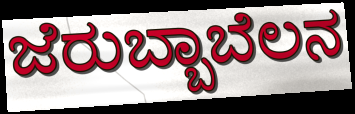
ಜೆರುಬ್ಬಾಬೆಲನ